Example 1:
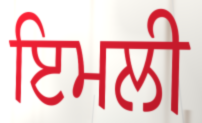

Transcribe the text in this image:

ਇਮਲੀ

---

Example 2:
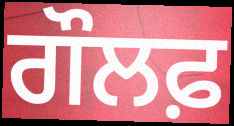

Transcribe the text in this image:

ਗੌਲਫ਼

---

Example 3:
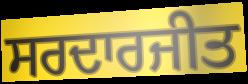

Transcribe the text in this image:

ਸਰਦਾਰਜੀਤ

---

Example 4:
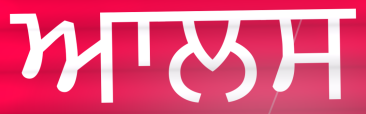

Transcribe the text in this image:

ਆਲਸ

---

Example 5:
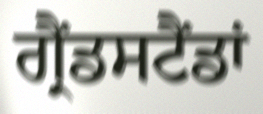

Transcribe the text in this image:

ਗ੍ਰੈਂਡਸਟੈਂਡਾਂ